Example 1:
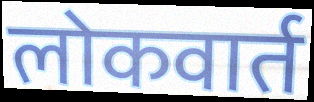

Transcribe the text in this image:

लोकवार्त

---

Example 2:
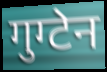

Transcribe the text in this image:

गुग्टेन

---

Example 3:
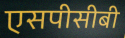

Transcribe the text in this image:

एसपीसीबी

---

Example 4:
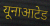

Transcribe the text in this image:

यूनाआटेड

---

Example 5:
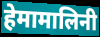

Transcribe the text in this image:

हेमामालिनी